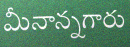
మీనాన్నగారు